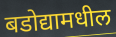
बडोद्यामधील